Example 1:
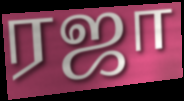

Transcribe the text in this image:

ரஜா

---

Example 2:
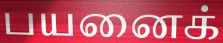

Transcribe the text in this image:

பயனைக்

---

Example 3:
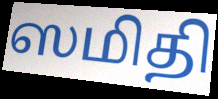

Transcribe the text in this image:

ஸமிதி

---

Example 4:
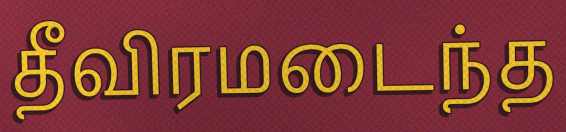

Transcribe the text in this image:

தீவிரமடைந்த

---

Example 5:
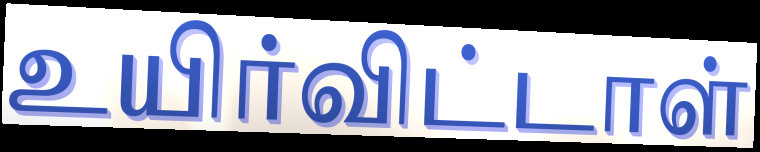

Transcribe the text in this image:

உயிர்விட்டாள்